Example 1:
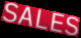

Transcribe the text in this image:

SALES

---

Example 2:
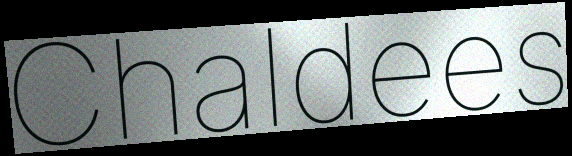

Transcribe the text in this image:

Chaldees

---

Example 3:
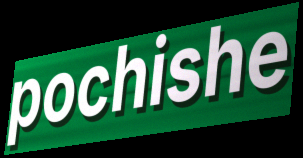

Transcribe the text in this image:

pochishe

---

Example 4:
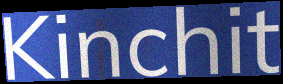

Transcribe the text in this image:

Kinchit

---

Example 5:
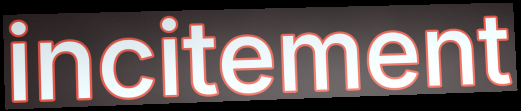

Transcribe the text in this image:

incitement